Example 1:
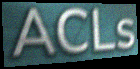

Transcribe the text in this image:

ACLs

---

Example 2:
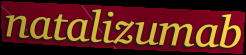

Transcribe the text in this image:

natalizumab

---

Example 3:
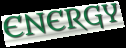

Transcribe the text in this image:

ENERGY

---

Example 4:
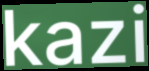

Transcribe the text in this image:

kazi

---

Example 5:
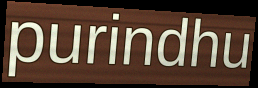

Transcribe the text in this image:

purindhu